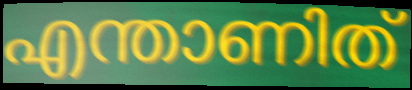
എന്താണിത്